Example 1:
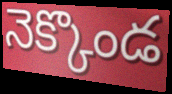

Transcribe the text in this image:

నెక్కొండ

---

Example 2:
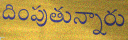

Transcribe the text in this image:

దింపుతున్నారు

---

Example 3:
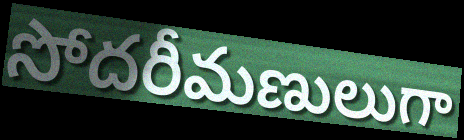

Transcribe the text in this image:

సోదరీమణులుగా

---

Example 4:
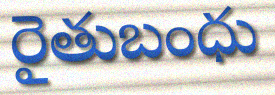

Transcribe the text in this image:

రైతుబంధు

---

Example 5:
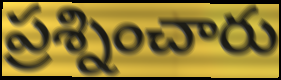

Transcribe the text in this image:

ప్రశ్నించారు